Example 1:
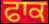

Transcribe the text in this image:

ਫਾਕ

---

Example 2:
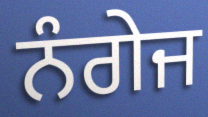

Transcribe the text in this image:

ਨੰਗੇਜ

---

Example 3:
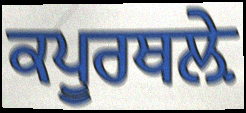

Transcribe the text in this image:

ਕਪੂਰਥਲ਼ੇ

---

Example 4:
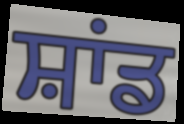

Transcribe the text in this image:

ਸ਼ਾਂਡ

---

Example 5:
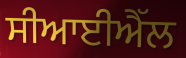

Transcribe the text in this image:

ਸੀਆਈਐੱਲ